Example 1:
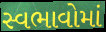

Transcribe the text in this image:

સ્વભાવોમાં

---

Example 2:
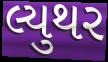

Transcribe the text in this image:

લ્યુથર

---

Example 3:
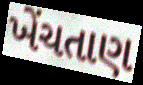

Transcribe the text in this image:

ખેંચતાણ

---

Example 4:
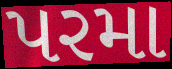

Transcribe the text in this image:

પરમા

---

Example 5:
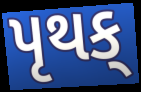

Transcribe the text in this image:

પૃથક્